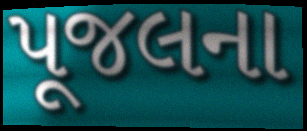
પૂજલના